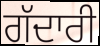
ਗੱਦਾਰੀ